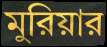
মুরিয়ার